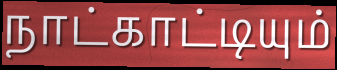
நாட்காட்டியும்